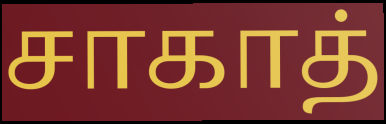
சாகாத்